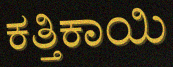
ಕತ್ತಿಕಾಯಿ